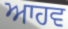
ਆਹਵ